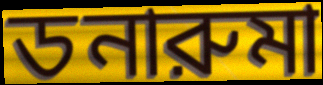
ডনারুমা